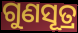
ଗୁଣସୂତ୍ର